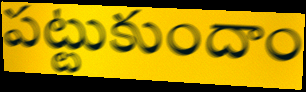
పట్టుకుందాం